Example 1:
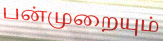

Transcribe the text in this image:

பன்முறையும்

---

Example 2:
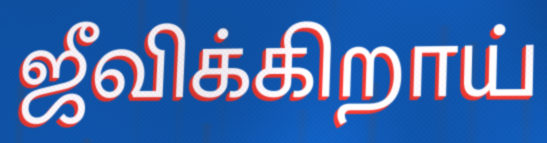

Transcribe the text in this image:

ஜீவிக்கிறாய்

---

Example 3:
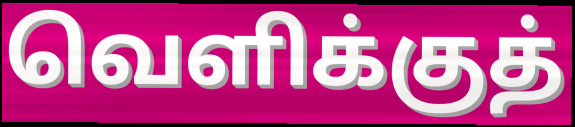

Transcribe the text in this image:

வெளிக்குத்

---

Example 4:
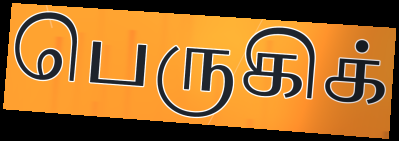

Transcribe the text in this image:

பெருகிக்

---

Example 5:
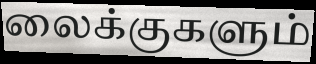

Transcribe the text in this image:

லைக்குகளும்